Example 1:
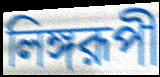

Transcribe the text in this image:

লিঙ্গরূপী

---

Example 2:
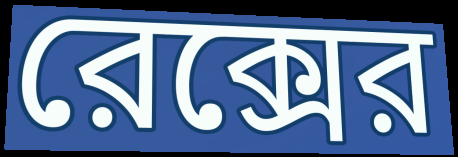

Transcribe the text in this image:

রেক্সের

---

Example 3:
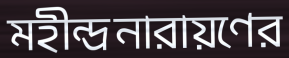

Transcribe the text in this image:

মহীন্দ্রনারায়ণের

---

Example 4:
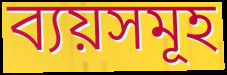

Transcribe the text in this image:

ব্যয়সমূহ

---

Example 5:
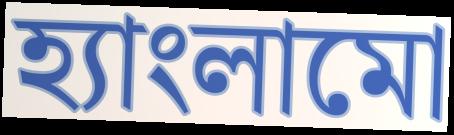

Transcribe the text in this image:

হ্যাংলামো